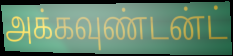
அக்கவுண்டன்ட்